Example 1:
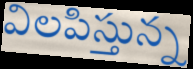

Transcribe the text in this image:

విలపిస్తున్న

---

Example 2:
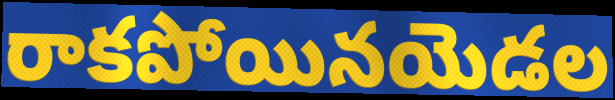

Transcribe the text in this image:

రాకపోయినయెడల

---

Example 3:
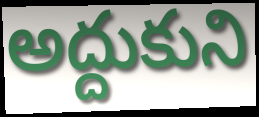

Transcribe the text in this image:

అద్దుకుని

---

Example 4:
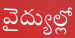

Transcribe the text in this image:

వైద్యుల్లో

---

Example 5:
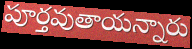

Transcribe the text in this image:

పూర్తవుతాయన్నారు